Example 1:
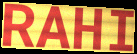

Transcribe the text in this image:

RAHI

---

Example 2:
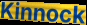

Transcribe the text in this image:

Kinnock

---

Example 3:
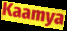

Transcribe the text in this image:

Kaamya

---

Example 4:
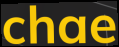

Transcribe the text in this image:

chae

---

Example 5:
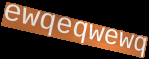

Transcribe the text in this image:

ewqeqwewq